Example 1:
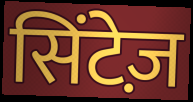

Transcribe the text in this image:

सिंटेज़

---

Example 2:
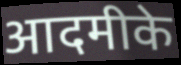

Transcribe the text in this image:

आदमीके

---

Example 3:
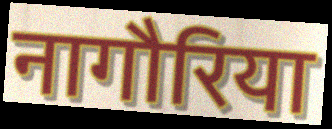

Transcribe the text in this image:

नागौरिया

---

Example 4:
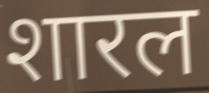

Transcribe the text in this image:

शारल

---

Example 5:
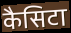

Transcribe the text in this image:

कैसिटा